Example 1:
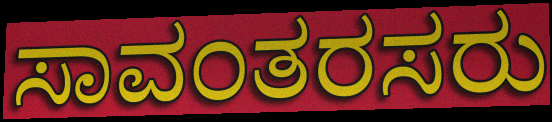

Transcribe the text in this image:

ಸಾವಂತರಸರು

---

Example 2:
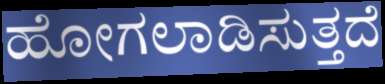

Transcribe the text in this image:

ಹೋಗಲಾಡಿಸುತ್ತದೆ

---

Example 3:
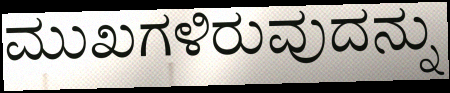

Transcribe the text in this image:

ಮುಖಗಳಿರುವುದನ್ನು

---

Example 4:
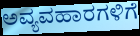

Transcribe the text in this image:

ಅವ್ಯವಹಾರಗಳಿಗೆ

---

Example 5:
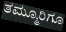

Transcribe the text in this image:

ತಮ್ಮೂರಿಗೂ